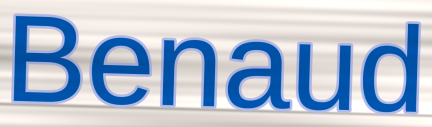
Benaud